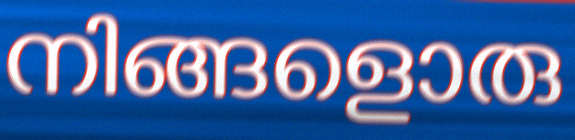
നിങ്ങളൊരു